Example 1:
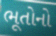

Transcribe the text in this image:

ભૂતોનો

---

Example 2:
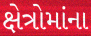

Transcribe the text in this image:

ક્ષેત્રોમાંના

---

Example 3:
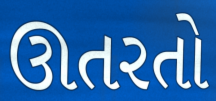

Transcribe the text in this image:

ઊતરતો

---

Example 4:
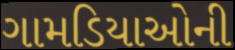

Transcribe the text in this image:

ગામડિયાઓની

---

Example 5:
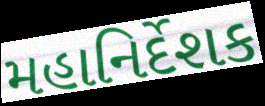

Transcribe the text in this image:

મહાનિર્દેશક